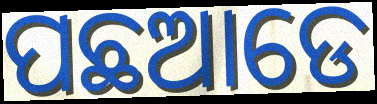
ପଛଆଡେ